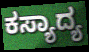
ಕಸ್ಯಾದ್ಯ